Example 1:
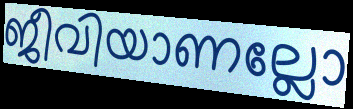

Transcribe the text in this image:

ജീവിയാണല്ലോ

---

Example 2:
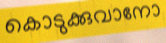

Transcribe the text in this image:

കൊടുക്കുവാനോ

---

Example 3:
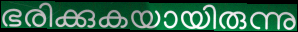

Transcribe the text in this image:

ഭരിക്കുകയായിരുന്നു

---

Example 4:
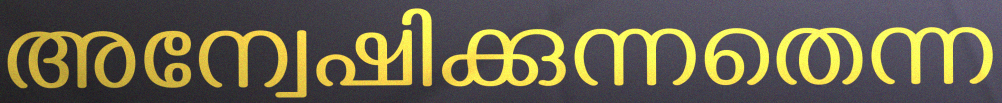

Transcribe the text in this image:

അന്വേഷിക്കുന്നതെന്ന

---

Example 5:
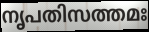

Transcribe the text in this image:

നൃപതിസത്തമഃ